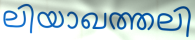
ലിയാഖത്തലി